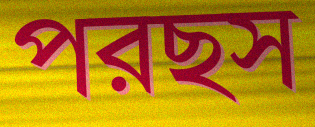
পরছস